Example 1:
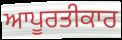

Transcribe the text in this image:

ਆਪੂਰਤੀਕਾਰ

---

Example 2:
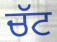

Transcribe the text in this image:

ਚੱਟ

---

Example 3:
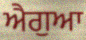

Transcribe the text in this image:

ਐਗੁਆ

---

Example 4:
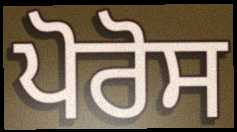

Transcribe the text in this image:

ਪੋਰੋਸ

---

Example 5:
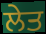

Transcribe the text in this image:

ਲੇਤ